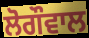
ਲੋਗੌਵਾਲ